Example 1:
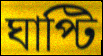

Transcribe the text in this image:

ঘাপ্টি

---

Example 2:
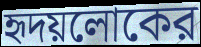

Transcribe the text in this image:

হৃদয়লোকের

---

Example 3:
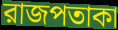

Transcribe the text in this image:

রাজপতাকা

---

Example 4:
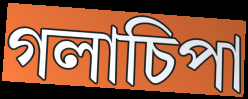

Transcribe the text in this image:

গলাচিপা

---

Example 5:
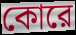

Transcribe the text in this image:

কোরে